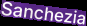
Sanchezia